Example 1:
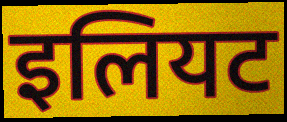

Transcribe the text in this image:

इलियट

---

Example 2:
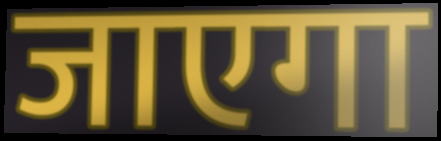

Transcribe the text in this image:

जाएगा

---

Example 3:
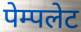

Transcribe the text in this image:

पेम्पलेट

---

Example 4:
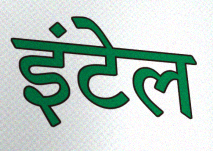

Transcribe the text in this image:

इंटेल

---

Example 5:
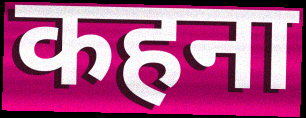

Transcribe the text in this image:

कहना